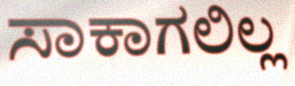
ಸಾಕಾಗಲಿಲ್ಲ